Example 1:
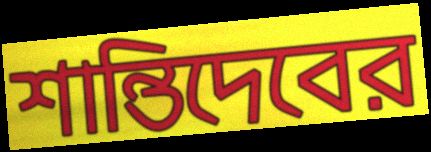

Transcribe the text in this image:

শান্তিদেবের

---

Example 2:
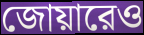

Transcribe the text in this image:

জোয়ারেও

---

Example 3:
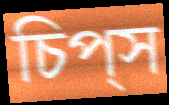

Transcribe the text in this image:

চিপ্‌স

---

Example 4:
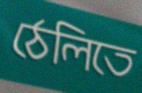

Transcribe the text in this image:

ঠেলিতে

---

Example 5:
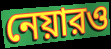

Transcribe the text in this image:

নেয়ারও